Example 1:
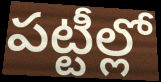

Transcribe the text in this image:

పట్టీల్లో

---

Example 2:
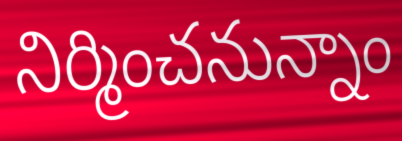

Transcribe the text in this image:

నిర్మించనున్నాం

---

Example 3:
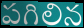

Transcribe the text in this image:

పగిలిన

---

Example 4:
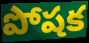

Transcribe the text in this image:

పోషక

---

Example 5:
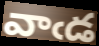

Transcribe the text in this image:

వాఁడ